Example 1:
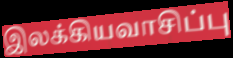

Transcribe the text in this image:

இலக்கியவாசிப்பு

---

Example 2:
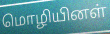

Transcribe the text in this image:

மொழியினள்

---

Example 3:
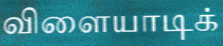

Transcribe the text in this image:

விளையாடிக்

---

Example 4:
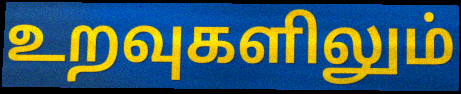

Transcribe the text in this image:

உறவுகளிலும்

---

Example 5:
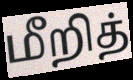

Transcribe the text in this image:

மீறித்